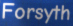
Forsyth